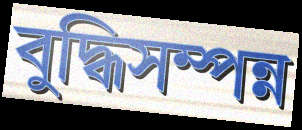
বুদ্ধিসম্পন্ন